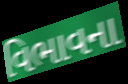
વિભાવના